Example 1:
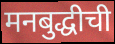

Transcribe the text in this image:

मनबुद्धीची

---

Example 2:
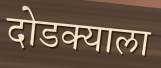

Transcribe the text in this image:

दोडक्याला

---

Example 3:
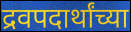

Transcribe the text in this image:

द्रवपदार्थांच्या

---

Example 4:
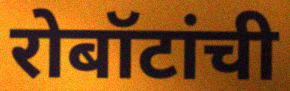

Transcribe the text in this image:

रोबॉटांची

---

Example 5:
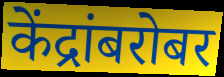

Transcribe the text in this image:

केंद्रांबरोबर